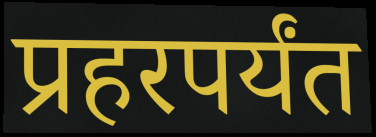
प्रहरपर्यंत